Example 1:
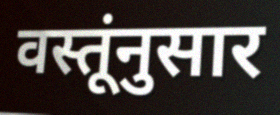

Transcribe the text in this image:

वस्तूंनुसार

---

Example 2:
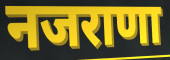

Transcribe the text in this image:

नजराणा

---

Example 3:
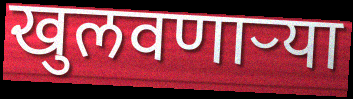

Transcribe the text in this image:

खुलवणाऱ्या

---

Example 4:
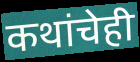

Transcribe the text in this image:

कथांचेही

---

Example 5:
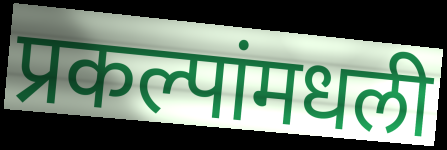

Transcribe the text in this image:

प्रकल्पांमधली